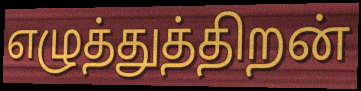
எழுத்துத்திறன்